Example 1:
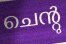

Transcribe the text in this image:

ചെന്റു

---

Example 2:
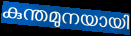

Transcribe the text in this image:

കുന്തമുനയായി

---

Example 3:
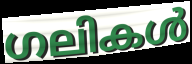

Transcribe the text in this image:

ഗലികൾ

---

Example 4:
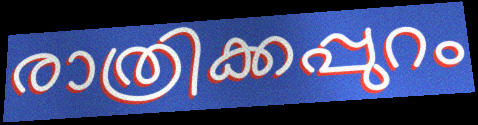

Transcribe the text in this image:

രാത്രിക്കപ്പുറം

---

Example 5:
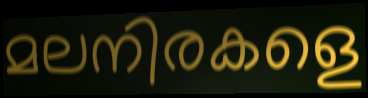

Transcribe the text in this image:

മലനിരകളെ